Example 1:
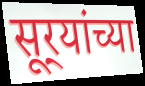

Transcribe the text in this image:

सूर्यांच्या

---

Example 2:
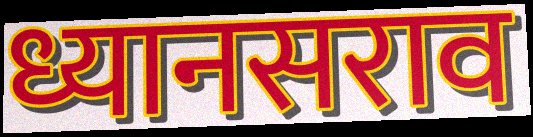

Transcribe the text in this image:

ध्यानसराव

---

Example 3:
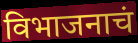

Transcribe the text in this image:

विभाजनाचं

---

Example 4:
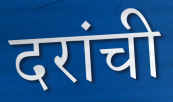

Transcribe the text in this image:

दरांची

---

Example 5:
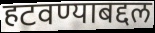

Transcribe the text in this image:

हटवण्याबद्दल